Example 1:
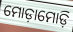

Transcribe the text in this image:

ମୋଡ଼ାମୋଡ଼ି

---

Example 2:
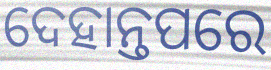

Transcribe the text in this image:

ଦେହାନ୍ତପରେ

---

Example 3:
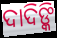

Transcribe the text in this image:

ଦାଦିଙ୍କି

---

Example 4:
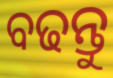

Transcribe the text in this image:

ବଢନ୍ତୁ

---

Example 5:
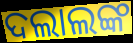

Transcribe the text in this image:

ଦଲାଲଙ୍କ